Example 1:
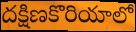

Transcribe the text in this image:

దక్షిణకొరియాలో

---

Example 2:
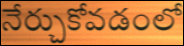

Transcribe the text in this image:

నేర్చుకోవడంలో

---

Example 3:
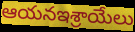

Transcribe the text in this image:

ఆయనఇశ్రాయేలు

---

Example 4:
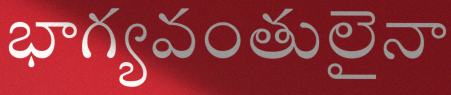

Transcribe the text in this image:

భాగ్యవంతులైనా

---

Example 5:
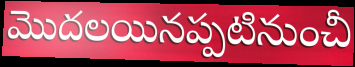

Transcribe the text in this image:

మొదలయినప్పటినుంచీ